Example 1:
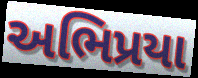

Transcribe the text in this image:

અભિપ્રયા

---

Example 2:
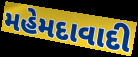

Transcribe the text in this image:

મહેમદાવાદી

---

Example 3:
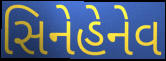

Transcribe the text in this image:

સિનેહેનેવ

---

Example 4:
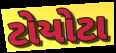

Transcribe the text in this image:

ટોયોટા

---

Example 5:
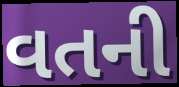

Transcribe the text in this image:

વતની